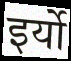
इर्यो